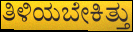
ತಿಳಿಯಬೇಕಿತ್ತು